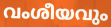
വംശീയവും